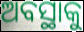
ଅବସ୍ଥାକୁ